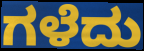
ಗಳೆದು